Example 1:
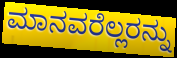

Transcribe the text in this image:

ಮಾನವರೆಲ್ಲರನ್ನು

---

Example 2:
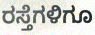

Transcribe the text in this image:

ರಸ್ತೆಗಳಿಗೂ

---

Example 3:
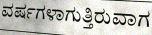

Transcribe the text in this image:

ವರ್ಷಗಳಾಗುತ್ತಿರುವಾಗ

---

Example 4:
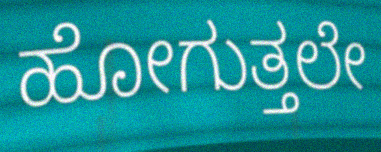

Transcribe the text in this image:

ಹೋಗುತ್ತಲೇ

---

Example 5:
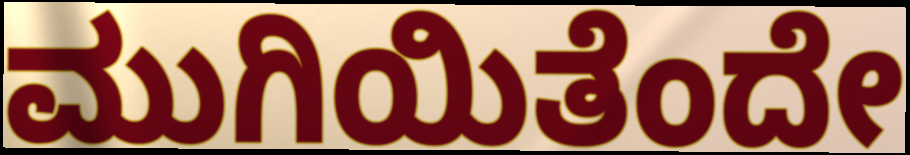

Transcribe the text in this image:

ಮುಗಿಯಿತೆಂದೇ